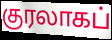
குரலாகப்